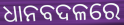
ଧାନବଦଳରେ